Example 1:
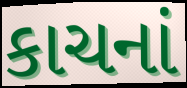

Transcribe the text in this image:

કાચનાં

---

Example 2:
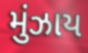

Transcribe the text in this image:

મુંઝાય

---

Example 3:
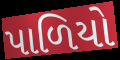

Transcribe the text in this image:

પાળિયો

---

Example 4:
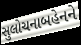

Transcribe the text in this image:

સુલોચનાબહેનને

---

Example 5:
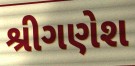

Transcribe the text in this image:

શ્રીગણેશ